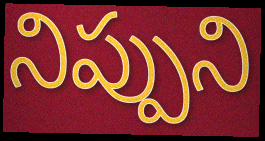
నిప్పుని